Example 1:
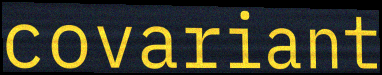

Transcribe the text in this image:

covariant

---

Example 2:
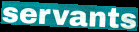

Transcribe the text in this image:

servants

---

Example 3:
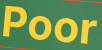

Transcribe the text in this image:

Poor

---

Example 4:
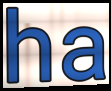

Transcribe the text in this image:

ha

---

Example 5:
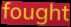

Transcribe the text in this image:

fought